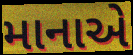
માનાએ